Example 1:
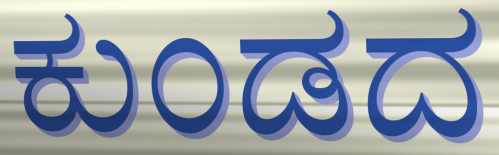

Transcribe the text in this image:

ಕುಂಡದ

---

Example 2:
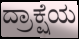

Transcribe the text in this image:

ದ್ರಾಕ್ಷೆಯ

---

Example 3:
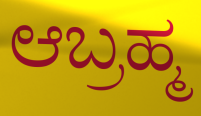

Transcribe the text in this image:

ಆಬ್ರಹ್ಮ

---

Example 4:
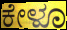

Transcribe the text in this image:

ಕೇಳೂ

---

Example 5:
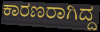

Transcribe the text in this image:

ಕಾರಣರಾಗಿದ್ದ